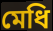
মেধি